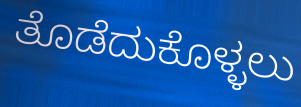
ತೊಡೆದುಕೊಳ್ಳಲು